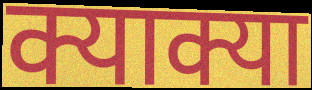
क्याक्या